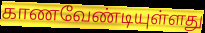
காணவேண்டியுள்ளது